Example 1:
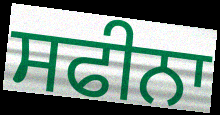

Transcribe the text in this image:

ਸਫੀਨਾ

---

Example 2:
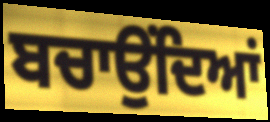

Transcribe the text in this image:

ਬਚਾਉਂਦਿਆਂ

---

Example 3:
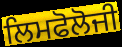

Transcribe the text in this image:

ਲਿਮਫੋਲੋਜੀ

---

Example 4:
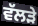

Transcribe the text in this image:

ਵੱਲੜੇ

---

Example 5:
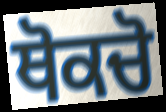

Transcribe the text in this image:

ਥੋਕਚੋ